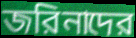
জরিনাদের